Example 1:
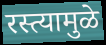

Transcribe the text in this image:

रस्त्यामुळे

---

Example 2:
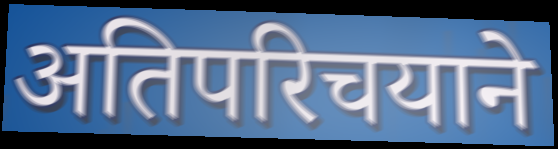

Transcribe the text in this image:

अतिपरिचयाने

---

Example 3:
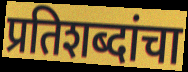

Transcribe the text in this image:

प्रतिशब्दांचा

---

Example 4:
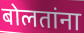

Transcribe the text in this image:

बोलतांना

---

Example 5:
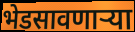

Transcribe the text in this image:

भेडसावणार्‍या